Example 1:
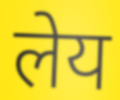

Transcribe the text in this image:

लेय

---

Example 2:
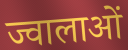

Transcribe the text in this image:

ज्वालाओं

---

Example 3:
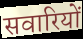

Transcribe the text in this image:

सवारियों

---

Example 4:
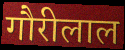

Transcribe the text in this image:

गौरीलाल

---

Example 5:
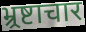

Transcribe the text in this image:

भ्र्रष्टाचार